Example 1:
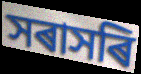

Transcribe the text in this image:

সৰাসৰি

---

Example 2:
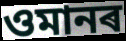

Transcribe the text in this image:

ওমানৰ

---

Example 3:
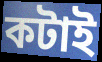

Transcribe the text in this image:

কটাই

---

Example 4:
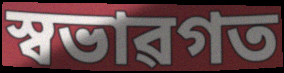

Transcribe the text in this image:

স্বভাৱগত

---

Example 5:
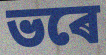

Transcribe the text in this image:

ভৰে